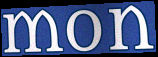
mon